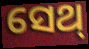
ସେଥ୍